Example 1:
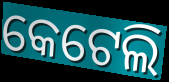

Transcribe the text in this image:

କେଟେଲି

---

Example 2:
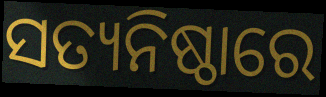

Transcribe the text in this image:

ସତ୍ୟନିଷ୍ଠାରେ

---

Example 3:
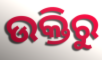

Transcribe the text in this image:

ଉକ୍ତିରୁ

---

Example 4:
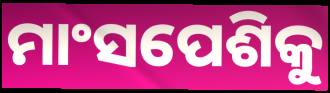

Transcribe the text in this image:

ମାଂସପେଶିକୁ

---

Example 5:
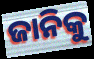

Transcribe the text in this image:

ଜାନିକୁ